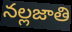
నల్లజాతి